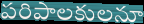
పరిపాలకులనూ